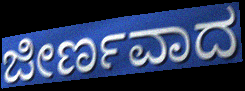
ಜೀರ್ಣವಾದ